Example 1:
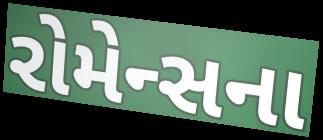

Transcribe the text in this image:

રોમેન્સના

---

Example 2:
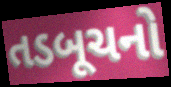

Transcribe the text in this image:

તડબૂચનો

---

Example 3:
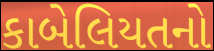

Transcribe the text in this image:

કાબેલિયતનો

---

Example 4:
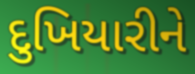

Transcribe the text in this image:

દુખિયારીને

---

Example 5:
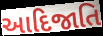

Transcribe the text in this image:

આદિજાતિ